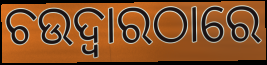
ଚଉଦ୍ଵାରଠାରେ